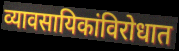
व्यावसायिकांविरोधात